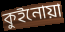
কুইনোয়া